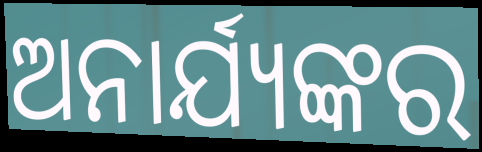
ଅନାର୍ଯ୍ୟଙ୍କର